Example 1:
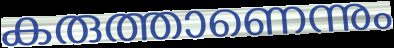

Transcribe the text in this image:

കരുത്താണെന്നും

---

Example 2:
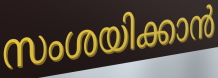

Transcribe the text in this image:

സംശയിക്കാൻ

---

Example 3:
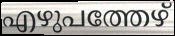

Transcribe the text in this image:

എഴുപത്തേഴ്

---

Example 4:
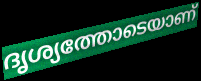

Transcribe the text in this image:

ദൃശ്യത്തോടെയാണ്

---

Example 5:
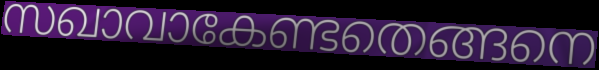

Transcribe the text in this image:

സഖാവാകേണ്ടതെങ്ങനെ